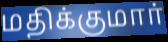
மதிக்குமார்